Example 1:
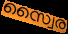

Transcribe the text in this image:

സ്വൈര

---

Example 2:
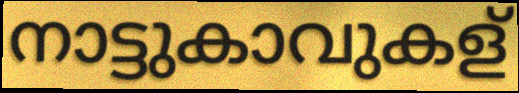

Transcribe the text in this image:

നാട്ടുകാവുകള്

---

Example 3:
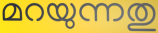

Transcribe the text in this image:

മറയുന്നതു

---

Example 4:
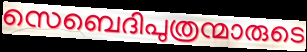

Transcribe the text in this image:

സെബെദിപുത്രന്മാരുടെ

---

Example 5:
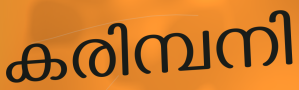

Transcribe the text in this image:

കരിമ്പനി